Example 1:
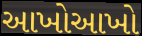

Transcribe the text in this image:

આખોઆખો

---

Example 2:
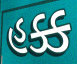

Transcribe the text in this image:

હક્ક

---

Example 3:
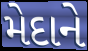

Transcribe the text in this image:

મેદાને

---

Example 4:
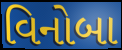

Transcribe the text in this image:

વિનોબા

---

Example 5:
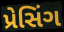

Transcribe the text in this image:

પ્રેસિંગ